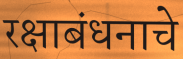
रक्षाबंधनाचे